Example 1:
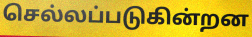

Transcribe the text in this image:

செல்லப்படுகின்றன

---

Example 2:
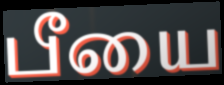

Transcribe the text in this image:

பீயை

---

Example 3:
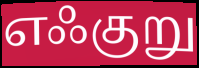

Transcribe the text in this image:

எஃகுறு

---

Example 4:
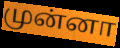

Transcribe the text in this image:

முன்னா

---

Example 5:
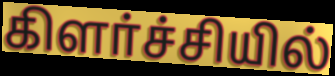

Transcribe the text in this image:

கிளர்ச்சியில்